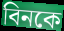
বিনকে